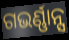
ଗଭର୍ଣ୍ଣାନ୍ସ